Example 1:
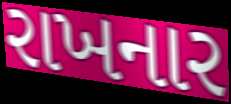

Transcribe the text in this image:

રાખનાર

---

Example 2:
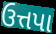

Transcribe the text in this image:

ઉત્તપા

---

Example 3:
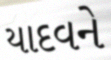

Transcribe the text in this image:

યાદવને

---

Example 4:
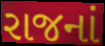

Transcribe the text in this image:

રાજનાં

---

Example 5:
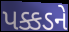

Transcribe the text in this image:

પક્કડને